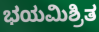
ಭಯಮಿಶ್ರಿತ